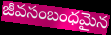
జీవసంబంధమైన